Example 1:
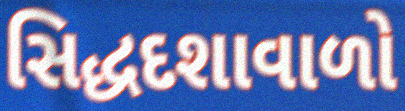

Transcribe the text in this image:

સિદ્ધદશાવાળો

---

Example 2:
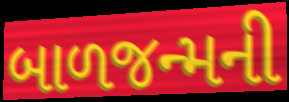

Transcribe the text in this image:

બાળજન્મની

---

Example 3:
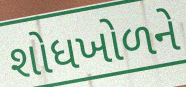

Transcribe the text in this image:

શોધખોળને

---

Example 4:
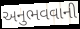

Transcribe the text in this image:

અનુભવવાની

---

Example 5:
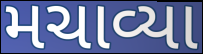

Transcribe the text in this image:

મચાવ્યા